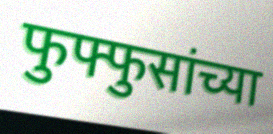
फुफ्फुसांच्या